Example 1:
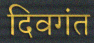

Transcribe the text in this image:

दिवगंत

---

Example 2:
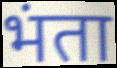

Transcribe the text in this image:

भंता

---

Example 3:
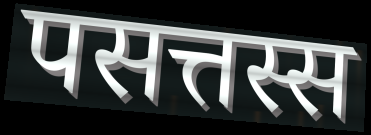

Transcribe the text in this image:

पसत्तस्स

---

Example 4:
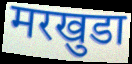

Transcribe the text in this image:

मरखुडा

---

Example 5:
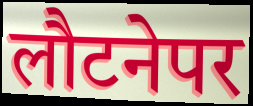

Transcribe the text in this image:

लौटनेपर